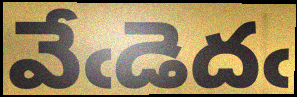
వేఁడెదఁ